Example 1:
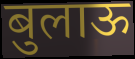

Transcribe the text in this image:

बुलाऊ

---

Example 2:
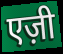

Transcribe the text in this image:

एज़ी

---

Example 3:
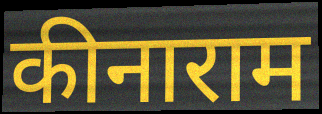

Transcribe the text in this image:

कीनाराम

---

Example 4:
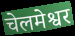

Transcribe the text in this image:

चेलमेश्वर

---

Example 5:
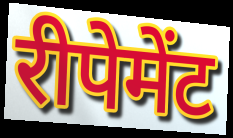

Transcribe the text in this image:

रीपेमेंट